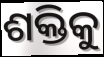
ଶକ୍ତିକୁ